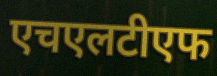
एचएलटीएफ